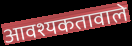
आवश्यकतावाले